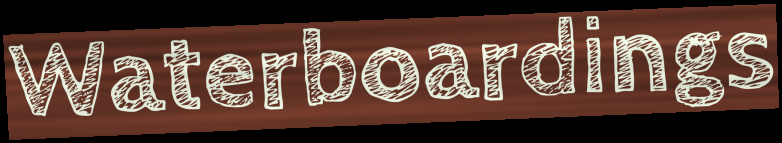
Waterboardings